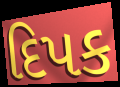
દિપક